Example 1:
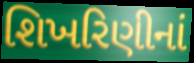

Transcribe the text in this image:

શિખરિણીનાં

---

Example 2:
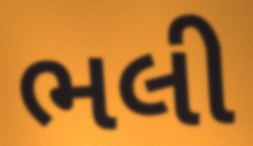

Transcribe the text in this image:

ભલી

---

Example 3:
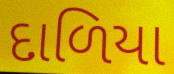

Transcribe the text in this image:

દાળિયા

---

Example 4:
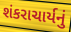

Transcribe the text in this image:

શંકરાચાર્યનું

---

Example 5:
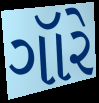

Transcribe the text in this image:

ગૉરે